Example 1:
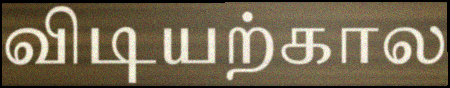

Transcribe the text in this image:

விடியற்கால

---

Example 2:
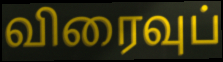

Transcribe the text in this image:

விரைவுப்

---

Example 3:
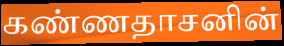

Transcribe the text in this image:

கண்ணதாசனின்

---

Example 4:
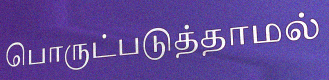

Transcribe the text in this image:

பொருட்படுத்தாமல்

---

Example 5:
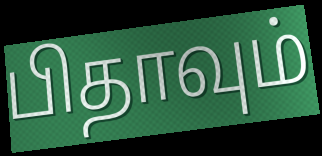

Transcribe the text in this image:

பிதாவும்